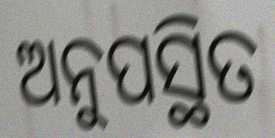
ଅନୁପସ୍ଥିତ